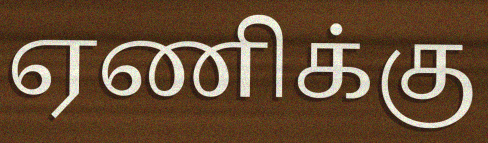
ஏணிக்கு